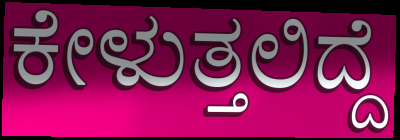
ಕೇಳುತ್ತಲಿದ್ದೆ